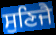
ਸੁਣਿਜੈ